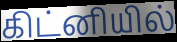
கிட்னியில்